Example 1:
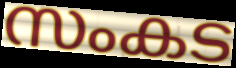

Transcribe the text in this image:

സംകട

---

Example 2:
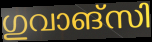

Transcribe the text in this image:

ഗുവാങ്സി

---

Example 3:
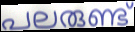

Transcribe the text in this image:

പലരുണ്ട്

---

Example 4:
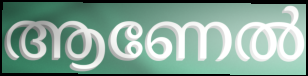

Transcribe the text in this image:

ആണേൽ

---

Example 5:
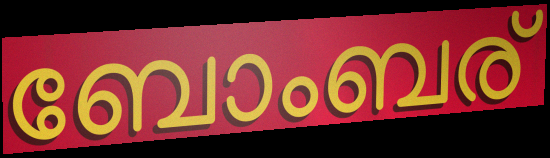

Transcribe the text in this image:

ബോംബര്